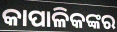
କାପାଳିକଙ୍କର